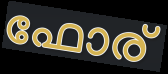
ഫോര്